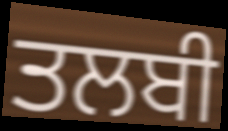
ਤਲਬੀ